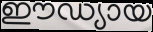
ഈഡ്യായ